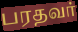
பரதவர்